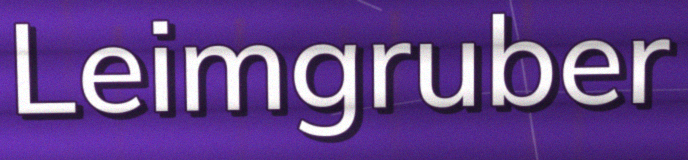
Leimgruber